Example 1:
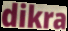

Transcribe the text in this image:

dikra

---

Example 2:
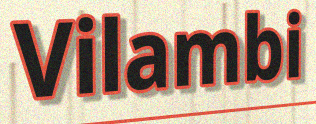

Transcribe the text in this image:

Vilambi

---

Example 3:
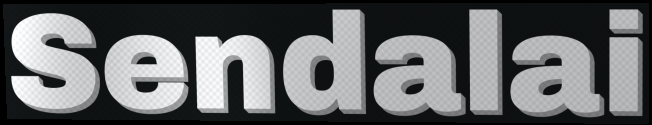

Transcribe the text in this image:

Sendalai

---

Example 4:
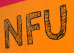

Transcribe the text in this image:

NFU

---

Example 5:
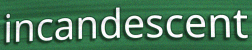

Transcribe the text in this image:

incandescent